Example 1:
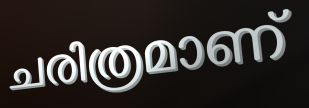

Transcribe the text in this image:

ചരിത്രമാണ്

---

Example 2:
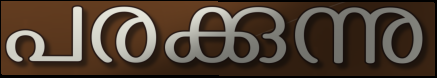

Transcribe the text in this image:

പരക്കുന്നു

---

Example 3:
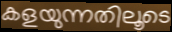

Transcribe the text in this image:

കളയുന്നതിലൂടെ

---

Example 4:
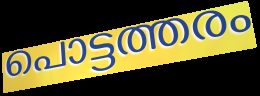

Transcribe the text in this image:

പൊട്ടത്തരം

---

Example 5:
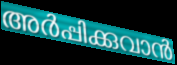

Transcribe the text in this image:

അർപ്പിക്കുവാൻ